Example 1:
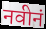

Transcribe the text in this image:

नवीनं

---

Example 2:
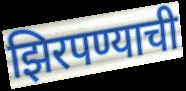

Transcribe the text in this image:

झिरपण्याची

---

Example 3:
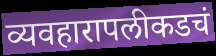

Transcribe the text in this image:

व्यवहारापलीकडचं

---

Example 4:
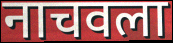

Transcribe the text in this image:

नाचवला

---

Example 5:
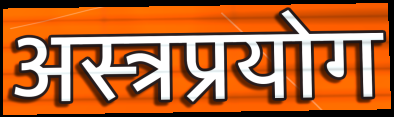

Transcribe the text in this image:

अस्त्रप्रयोग